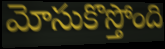
మోసుకొస్తోంది